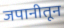
जपानीतून